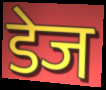
डेज